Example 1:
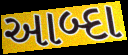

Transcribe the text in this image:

આબ્દા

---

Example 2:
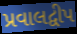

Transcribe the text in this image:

પ્રવાલદ્વીપ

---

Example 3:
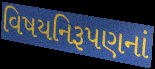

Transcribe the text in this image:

વિષયનિરૂપણનાં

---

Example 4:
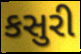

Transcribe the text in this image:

કસુરી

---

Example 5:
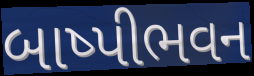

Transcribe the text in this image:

બાષ્પીભવન